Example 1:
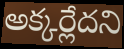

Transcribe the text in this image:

అక్కర్లేదని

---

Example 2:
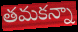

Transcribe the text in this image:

తమకన్నా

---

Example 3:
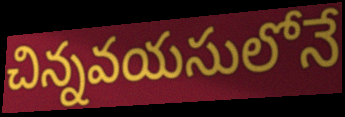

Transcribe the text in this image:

చిన్నవయసులోనే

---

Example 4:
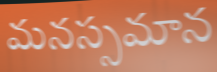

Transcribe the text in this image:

మనస్సమాన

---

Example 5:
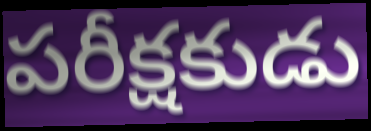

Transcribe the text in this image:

పరీక్షకుడు